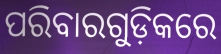
ପରିବାରଗୁଡ଼ିକରେ